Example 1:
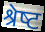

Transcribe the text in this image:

श्रेष्‍ट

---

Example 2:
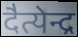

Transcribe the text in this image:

दैत्येन्द्र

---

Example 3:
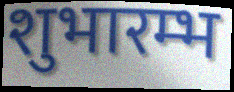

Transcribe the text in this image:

शुभारम्भ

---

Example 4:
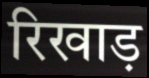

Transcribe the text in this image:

रिखाड़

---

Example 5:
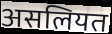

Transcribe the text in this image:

असलियत